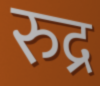
रुद्र